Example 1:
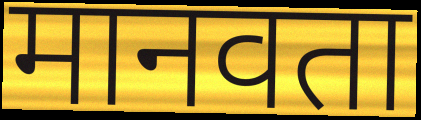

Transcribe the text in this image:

मानवता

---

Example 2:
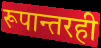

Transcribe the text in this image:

रूपान्तरही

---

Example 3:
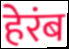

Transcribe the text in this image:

हेरंब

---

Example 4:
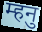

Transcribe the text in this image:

म्हनु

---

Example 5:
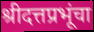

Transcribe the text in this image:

श्रीदत्तप्रभूंचा